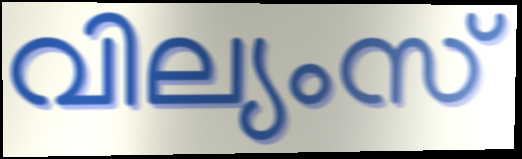
വില്യംസ്